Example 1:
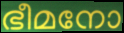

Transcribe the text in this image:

ഭീമനോ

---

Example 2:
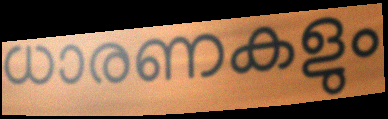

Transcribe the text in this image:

ധാരണകളും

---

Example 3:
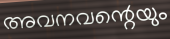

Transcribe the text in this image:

അവനവന്റെയും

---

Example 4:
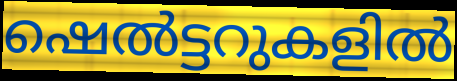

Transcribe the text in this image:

ഷെൽട്ടറുകളിൽ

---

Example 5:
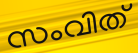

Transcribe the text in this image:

സംവിത്